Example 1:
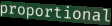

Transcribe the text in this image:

proportional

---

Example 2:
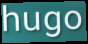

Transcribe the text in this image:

hugo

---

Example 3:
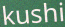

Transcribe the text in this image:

kushi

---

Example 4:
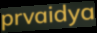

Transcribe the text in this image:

prvaidya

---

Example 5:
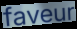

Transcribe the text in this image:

faveur